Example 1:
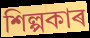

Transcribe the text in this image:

শিল্পকাৰ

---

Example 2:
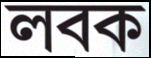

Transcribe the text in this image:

লবক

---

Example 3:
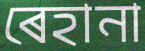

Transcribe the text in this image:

ৰেহানা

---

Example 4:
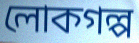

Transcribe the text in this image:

লোকগল্প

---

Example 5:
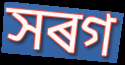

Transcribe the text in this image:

সৰগ